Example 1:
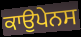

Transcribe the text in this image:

ਕਾਉਪੇਨਸ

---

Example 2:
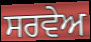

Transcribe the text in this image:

ਸਰਵੇਅ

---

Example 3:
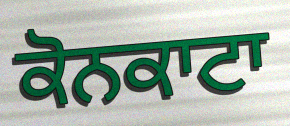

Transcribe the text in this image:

ਕੋਨਕਾਟਾ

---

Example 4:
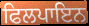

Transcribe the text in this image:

ਫਿਲਪਾਇਨ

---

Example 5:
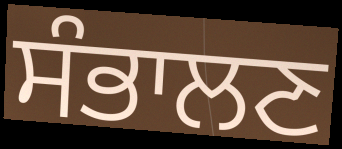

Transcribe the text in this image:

ਸੰਭਾਲਣ